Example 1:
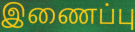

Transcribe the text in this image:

இணைப்பு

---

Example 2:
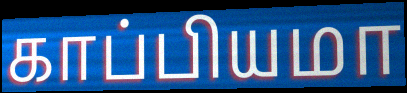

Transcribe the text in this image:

காப்பியமா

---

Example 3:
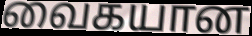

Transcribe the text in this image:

வைகயான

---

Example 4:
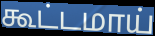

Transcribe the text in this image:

கூட்டமாய்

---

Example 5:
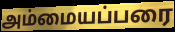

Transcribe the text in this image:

அம்மையப்பரை